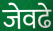
जेवढे